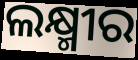
ଲକ୍ଷ୍ମୀର